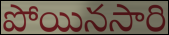
పోయినసారి